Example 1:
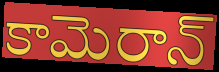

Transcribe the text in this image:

కామెరాన్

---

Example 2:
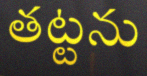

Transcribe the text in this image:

తట్టను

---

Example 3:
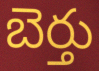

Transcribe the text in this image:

బెర్తు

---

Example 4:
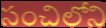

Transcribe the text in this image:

సంచిలోని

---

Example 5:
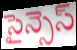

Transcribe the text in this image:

సైన్సెస్